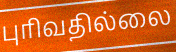
புரிவதில்லை